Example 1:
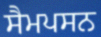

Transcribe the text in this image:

ਸੈਮਪਸਨ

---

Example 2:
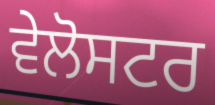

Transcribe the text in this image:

ਵੇਲੋਸਟਰ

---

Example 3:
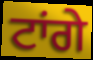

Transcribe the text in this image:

ਟਾਂਗੇ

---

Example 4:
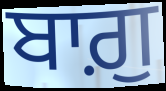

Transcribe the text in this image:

ਬਾਗ਼ੁ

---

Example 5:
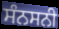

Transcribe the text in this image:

ਸੰਨਸਨੀ